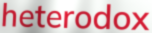
heterodox